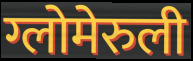
ग्लोमेरुली